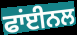
ਫਾਂਈਨਲ